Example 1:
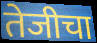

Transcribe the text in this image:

तेजीचा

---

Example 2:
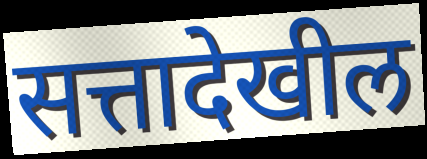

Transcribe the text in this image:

सत्तादेखील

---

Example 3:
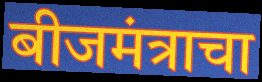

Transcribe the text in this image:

बीजमंत्राचा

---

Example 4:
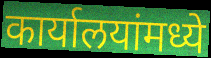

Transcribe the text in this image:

कार्यालयांमध्ये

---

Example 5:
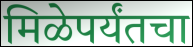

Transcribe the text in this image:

मिळेपर्यंतचा